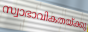
സ്വാഭാവികതയ്ക്കു